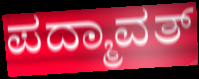
ಪದ್ಮಾವತ್